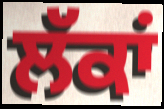
ਲੱਕਾਂ